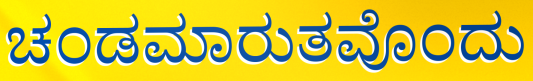
ಚಂಡಮಾರುತವೊಂದು